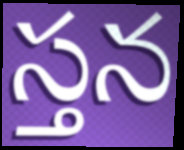
స్తన